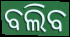
ବଲିବ